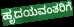
ಹೃದಯವಂತರಿಗೆ